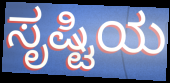
ಸೃಷ್ಟಿಯ